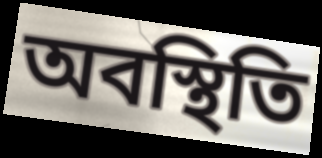
অবস্থিতি